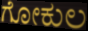
ಗೋಕುಲ